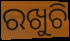
ରଖୁଚି